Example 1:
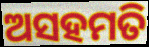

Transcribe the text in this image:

ଅସହମତି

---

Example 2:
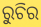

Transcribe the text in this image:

ରୁଚିର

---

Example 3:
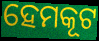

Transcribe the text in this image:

ହେମକୂଟ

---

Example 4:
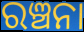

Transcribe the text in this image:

ରଞ୍ଚନା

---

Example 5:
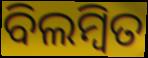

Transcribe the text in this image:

ବିଲମ୍ୱିତ